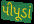
પીપૂડાં